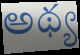
అథ్య